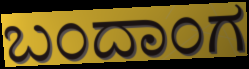
ಬಂದಾಂಗ